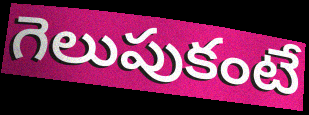
గెలుపుకంటే